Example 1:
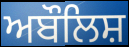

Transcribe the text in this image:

ਅਬੌਲਿਸ਼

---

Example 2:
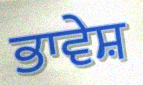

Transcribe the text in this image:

ਭਾਵੇਸ਼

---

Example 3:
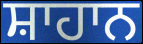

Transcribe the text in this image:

ਸ਼ਾਹਾਨ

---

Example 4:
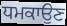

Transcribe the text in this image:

ਧਮਕਾਉਣ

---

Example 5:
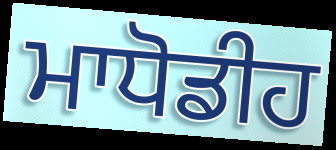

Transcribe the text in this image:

ਮਾਧੋਡੀਹ